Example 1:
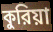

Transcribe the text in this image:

কুরিয়া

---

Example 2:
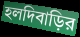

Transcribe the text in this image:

হলদিবাড়ির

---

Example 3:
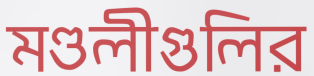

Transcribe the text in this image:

মণ্ডলীগুলির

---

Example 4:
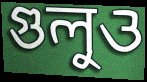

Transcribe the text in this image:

গুলুও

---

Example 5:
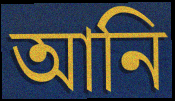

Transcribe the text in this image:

আনি